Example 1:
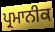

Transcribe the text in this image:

ਪ੍ਰਮਾਨੀਕ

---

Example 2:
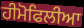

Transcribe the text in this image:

ਹੀਮੋਫਿਲੀਆ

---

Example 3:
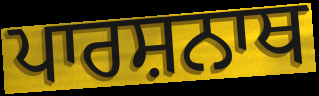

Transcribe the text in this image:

ਪਾਰਸ਼ਨਾਥ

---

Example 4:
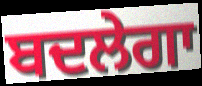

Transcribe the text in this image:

ਬਦਲੇਗਾ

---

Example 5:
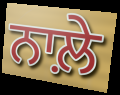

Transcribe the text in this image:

ਨਾਲ਼ੇ